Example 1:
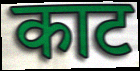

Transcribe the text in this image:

काट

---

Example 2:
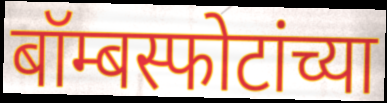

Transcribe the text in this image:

बॉम्बस्फोटांच्या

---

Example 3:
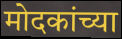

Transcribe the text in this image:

मोदकांच्या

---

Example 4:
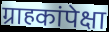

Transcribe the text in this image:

ग्राहकांपेक्षा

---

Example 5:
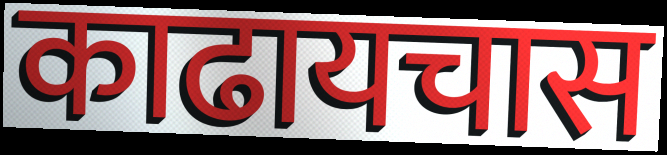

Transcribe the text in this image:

काढायचास